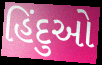
હિંદુઓ